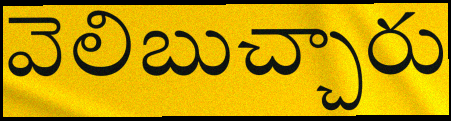
వెలిబుచ్చారు